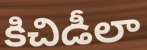
కిచిడీలా